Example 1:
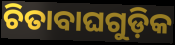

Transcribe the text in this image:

ଚିତାବାଘଗୁଡ଼ିକ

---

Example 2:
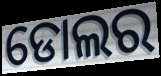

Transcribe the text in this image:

ଡୋଲର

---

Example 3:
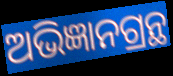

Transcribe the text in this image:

ଅଭିଜ୍ଞାନଗ୍ରନ୍ଥ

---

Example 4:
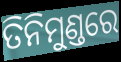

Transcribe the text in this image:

ତିନିମୁଣ୍ଡରେ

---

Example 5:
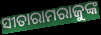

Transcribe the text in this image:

ସୀତାରାମରାଜୁଙ୍କ